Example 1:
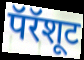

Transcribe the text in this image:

पॅरॅशूट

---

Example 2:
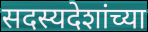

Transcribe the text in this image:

सदस्यदेशांच्या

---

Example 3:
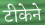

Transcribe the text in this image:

टीकेने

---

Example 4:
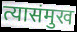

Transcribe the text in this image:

त्यासंमुख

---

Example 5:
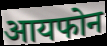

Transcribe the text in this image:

आयफोन